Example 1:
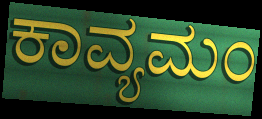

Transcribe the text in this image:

ಕಾವ್ಯಮಂ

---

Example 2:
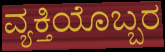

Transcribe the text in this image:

ವ್ಯಕ್ತಿಯೊಬ್ಬರ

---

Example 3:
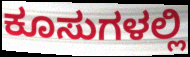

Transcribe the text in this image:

ಕೂಸುಗಳಲ್ಲಿ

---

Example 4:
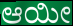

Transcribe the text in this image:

ಆಯೀ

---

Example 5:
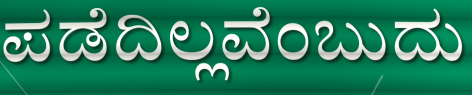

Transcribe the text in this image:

ಪಡೆದಿಲ್ಲವೆಂಬುದು